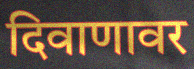
दिवाणावर